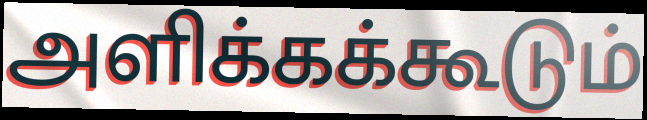
அளிக்கக்கூடும்